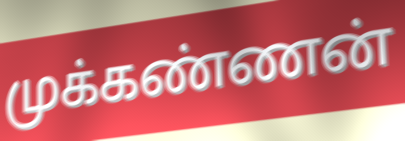
முக்கண்ணன்